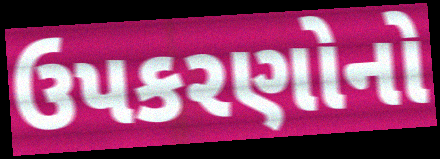
ઉપકરણોનો